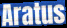
Aratus